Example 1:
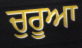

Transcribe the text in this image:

ਚੁਰੂਆ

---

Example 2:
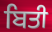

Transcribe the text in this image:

ਬਿਤੀ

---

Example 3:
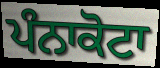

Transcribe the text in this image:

ਪੰਨਾਕੋਟਾ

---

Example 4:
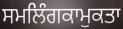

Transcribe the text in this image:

ਸਮਲਿੰਗਕਾਮੁਕਤਾ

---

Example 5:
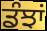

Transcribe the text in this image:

ਡੰਝਾਂ